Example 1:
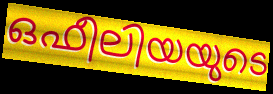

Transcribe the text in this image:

ഒഫീലിയയുടെ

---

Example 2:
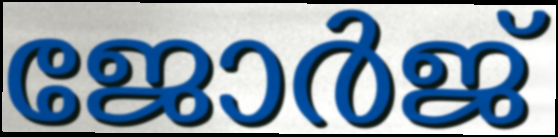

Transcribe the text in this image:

ജോർജ്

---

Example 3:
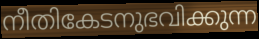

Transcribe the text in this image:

നീതികേടനുഭവിക്കുന്ന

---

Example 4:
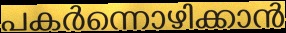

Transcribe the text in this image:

പകർന്നൊഴിക്കാൻ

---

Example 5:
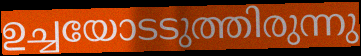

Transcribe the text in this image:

ഉച്ചയോടടുത്തിരുന്നു